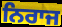
ਨਿਰਾਜ